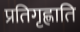
प्रतिगृह्णाति